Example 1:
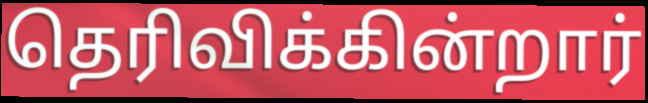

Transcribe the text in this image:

தெரிவிக்கின்றார்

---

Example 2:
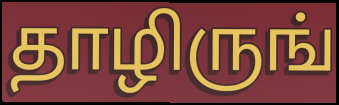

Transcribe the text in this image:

தாழிருங்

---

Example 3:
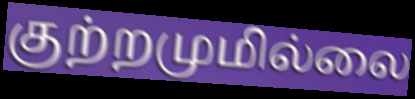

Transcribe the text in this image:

குற்றமுமில்லை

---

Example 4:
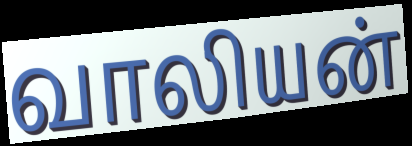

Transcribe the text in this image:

வாலியன்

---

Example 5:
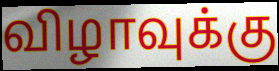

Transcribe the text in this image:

விழாவுக்கு